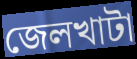
জেলখাটা